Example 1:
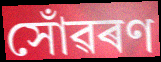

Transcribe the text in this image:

সোঁৱৰণ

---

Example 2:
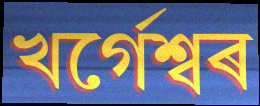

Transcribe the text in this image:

খৰ্গেশ্বৰ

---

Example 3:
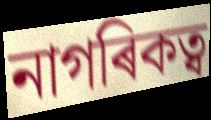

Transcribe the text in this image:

নাগৰিকত্ব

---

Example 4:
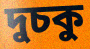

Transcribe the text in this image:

দুচকু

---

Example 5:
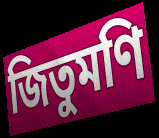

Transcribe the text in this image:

জিতুমণি